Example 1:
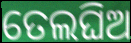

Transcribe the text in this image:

ତେଲଘିଅ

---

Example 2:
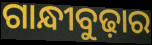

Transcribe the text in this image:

ଗାନ୍ଧୀବୁଢ଼ାର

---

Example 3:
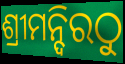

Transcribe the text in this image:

ଶ୍ରୀମନ୍ଦିରଠୁ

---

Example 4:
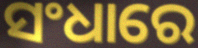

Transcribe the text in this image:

ସଂଧାରେ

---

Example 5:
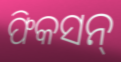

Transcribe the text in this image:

ଫିକସନ୍